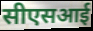
सीएसआई